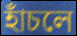
হাঁচলে